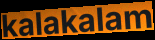
kalakalam